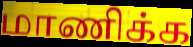
மாணிக்க